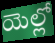
యెల్లో